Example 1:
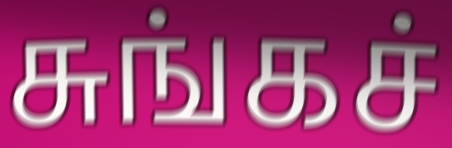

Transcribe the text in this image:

சுங்கச்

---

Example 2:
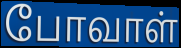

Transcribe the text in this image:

போவாள்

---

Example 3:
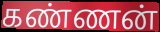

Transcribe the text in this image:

கண்ணன்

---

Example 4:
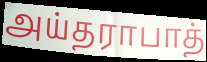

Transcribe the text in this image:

அய்தராபாத்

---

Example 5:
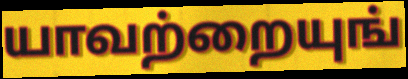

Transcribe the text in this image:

யாவற்றையுங்